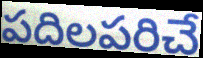
పదిలపరిచే